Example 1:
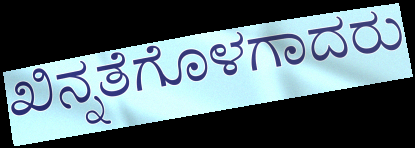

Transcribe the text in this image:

ಖಿನ್ನತೆಗೊಳಗಾದರು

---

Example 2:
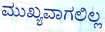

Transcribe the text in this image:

ಮುಖ್ಯವಾಗಲಿಲ್ಲ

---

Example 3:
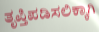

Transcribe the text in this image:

ತೃಪ್ತಿಪಡಿಸಲಿಕ್ಕಾಗಿ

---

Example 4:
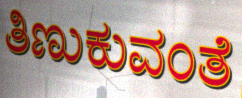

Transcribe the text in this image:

ತಿಣುಕುವಂತೆ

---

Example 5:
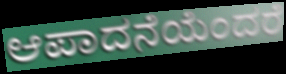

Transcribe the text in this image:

ಆಪಾದನೆಯೆಂದರೆ